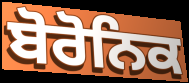
ਬੋਰੋਨਿਕ